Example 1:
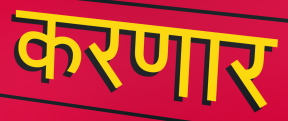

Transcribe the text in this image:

करणार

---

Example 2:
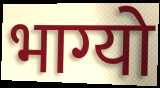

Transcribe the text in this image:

भाग्यो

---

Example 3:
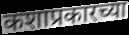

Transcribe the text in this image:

कशाप्रकारच्या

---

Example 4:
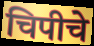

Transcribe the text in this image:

चिपीचे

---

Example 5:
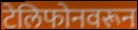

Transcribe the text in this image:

टेलिफोनवरून